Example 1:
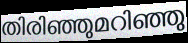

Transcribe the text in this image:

തിരിഞ്ഞുമറിഞ്ഞു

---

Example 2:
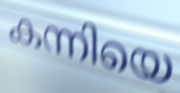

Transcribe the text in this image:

കന്നിയെ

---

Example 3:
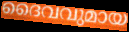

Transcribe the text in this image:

ദൈവവുമായ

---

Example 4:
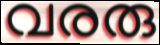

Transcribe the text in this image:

വരരു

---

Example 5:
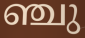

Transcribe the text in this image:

ഞ്ചു